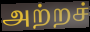
அற்றச்